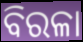
ବିରଳା